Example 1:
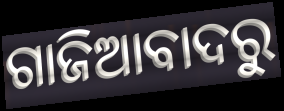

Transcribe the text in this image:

ଗାଜିଆବାଦରୁ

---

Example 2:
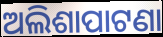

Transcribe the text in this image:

ଅଲିଶାପାଟଣା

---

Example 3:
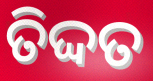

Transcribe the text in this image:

ତିଦ୍ଦତ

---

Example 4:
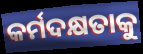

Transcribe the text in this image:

କର୍ମଦକ୍ଷତାକୁ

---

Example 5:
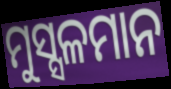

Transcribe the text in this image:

ମୁସ୍ସଳମାନ